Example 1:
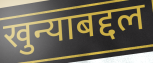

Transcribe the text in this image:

खुन्याबद्दल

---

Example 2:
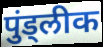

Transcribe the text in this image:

पुंड्लीक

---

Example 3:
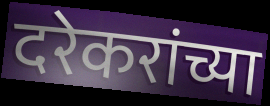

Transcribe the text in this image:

दरेकरांच्या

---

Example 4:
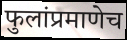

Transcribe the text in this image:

फुलांप्रमाणेच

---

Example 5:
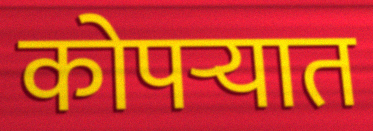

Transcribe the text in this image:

कोपऱ्यात